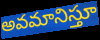
అవమానిస్తూ